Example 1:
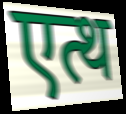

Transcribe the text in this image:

एत्थ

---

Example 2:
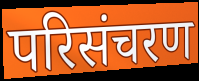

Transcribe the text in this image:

परिसंचरण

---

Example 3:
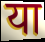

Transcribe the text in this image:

या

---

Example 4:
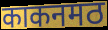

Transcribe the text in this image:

काकनमठ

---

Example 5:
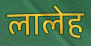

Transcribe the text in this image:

लालेह